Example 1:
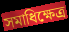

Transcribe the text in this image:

সমাধিক্ষেত্ৰ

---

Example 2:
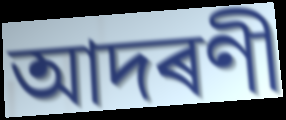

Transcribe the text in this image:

আদৰণী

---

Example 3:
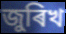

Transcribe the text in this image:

জুৰিখ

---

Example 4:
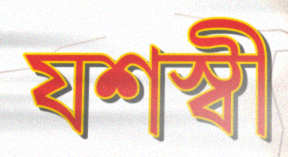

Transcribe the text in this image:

যশস্বী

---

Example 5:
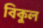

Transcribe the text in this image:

বিকুল